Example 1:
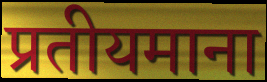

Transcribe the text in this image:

प्रतीयमाना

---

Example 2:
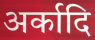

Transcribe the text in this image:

अर्कादि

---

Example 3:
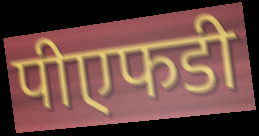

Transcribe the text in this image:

पीएफडी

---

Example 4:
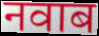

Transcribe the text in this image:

नवाब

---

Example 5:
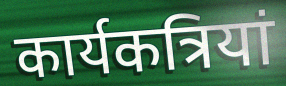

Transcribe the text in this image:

कार्यकत्रियां